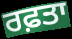
ਰਫ਼ਤਾ